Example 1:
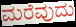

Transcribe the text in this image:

ಮರೆವುದು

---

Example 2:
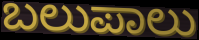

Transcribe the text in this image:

ಬಲುಪಾಲು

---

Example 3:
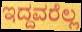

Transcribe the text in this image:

ಇದ್ದವರೆಲ್ಲ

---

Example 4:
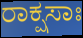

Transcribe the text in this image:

ರಾಕ್ಷಸಾಃ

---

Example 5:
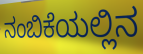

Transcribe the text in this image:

ನಂಬಿಕೆಯಲ್ಲಿನ